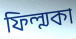
ফিল্মকা